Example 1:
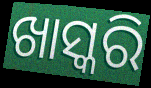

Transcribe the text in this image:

ଖାସ୍କରି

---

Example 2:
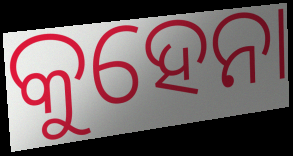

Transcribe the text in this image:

କୁହେନା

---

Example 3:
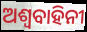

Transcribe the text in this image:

ଅଶ୍ୱବାହିନୀ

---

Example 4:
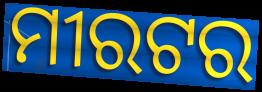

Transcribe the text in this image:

ମୀରଟର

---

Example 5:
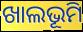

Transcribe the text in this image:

ଖାଲଭୂମି